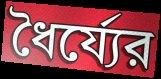
ধৈর্য্যের